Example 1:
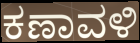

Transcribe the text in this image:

ಕಣಾವಳಿ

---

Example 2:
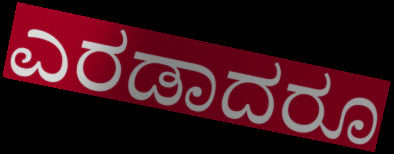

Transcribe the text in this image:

ಎರಡಾದರೂ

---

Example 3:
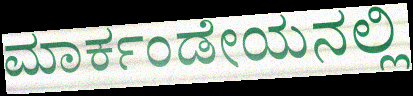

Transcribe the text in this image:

ಮಾರ್ಕಂಡೇಯನಲ್ಲಿ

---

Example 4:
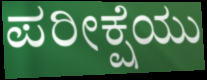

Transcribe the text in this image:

ಪರೀಕ್ಷೆಯು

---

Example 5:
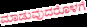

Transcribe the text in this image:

ಮಾಡುವುದರೊಳಗೆ